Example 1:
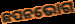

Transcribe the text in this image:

ଛପନଭୋଗ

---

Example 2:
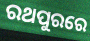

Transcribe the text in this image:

ରଥପୁରରେ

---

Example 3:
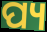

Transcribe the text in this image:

ପ୍ୟ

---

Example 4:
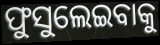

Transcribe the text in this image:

ଫୁସୁଲେଇବାକୁ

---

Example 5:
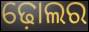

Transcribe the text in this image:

ଢ଼ୋଲର